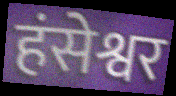
हंसेश्वर